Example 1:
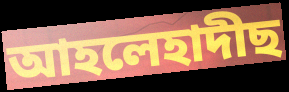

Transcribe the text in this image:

আহলেহাদীছ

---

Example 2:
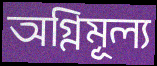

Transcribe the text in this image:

অগ্নিমূল্য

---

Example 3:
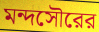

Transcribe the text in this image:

মন্দসৌরের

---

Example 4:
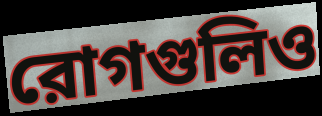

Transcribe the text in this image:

রোগগুলিও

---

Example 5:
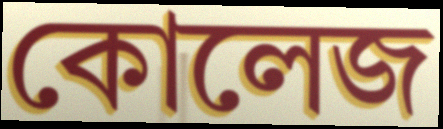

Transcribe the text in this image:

কোলেজ